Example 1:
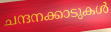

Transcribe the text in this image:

ചന്ദനക്കാടുകൾ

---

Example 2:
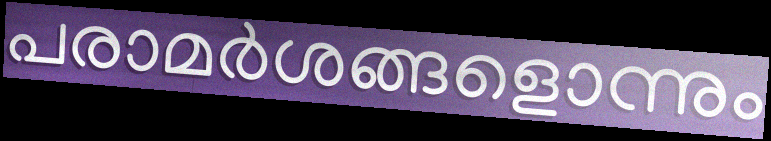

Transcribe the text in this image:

പരാമർശങ്ങളൊന്നും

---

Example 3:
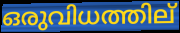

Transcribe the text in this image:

ഒരുവിധത്തില്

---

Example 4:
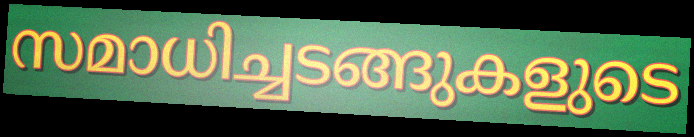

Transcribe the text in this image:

സമാധിച്ചടങ്ങുകളുടെ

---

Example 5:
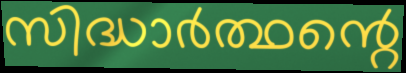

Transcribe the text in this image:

സിദ്ധാർത്ഥന്റെ